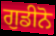
ਗੁਡੀਨੋ